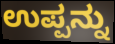
ಉಪ್ಪನ್ನು